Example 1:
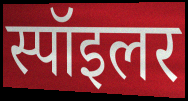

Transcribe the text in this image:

स्पॉइलर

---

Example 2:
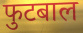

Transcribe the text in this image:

फुटबाल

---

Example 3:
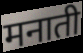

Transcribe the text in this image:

मनाती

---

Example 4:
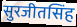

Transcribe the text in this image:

सुरजीतसिंह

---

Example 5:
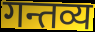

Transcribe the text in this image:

गन्तव्य